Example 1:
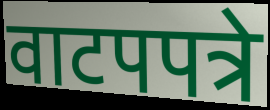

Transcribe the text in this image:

वाटपपत्रे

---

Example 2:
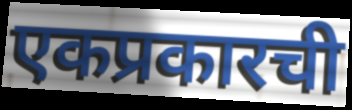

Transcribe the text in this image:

एकप्रकारची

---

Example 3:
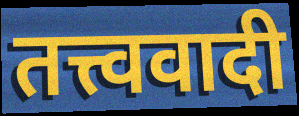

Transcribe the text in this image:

तत्त्ववादी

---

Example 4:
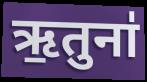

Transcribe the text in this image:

ऋ॒तुना॑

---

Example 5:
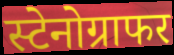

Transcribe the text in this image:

स्टेनोग्राफर